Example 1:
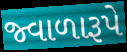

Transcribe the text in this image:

જ્વાળારૂપે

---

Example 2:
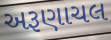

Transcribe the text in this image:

અરૂણાચલ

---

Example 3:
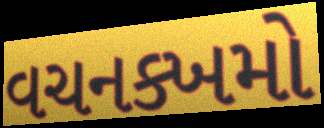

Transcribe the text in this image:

વચનક્ખમો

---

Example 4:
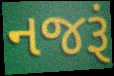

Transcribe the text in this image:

નજરૂં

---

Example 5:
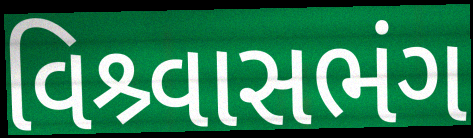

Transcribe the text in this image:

વિશ્ર્વાસભંગ